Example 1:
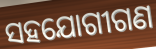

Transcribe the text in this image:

ସହଯୋଗୀଗଣ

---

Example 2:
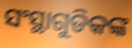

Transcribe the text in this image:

ସଂସ୍ଥାଗୁଡିକଙ୍କ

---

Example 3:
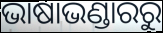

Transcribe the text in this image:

ଭାଷାଭଣ୍ଡାରରୁ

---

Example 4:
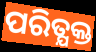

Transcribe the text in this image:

ପରିତ୍ଯକ୍ତ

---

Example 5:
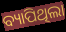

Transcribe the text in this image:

ବ୍ୟାପିଥିଲା